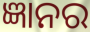
ଜ୍ଞାନର